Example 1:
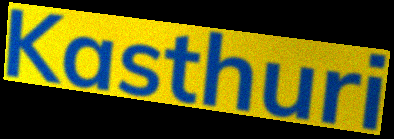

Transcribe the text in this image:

Kasthuri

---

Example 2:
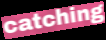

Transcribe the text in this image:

catching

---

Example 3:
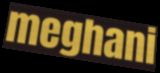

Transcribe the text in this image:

meghani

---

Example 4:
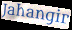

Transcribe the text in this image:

Jahangir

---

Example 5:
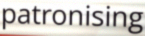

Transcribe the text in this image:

patronising